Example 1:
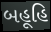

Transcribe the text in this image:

બહૂહિ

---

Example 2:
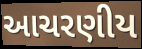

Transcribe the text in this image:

આચરણીય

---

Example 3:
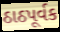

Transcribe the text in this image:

ઠાઠપૂર્વક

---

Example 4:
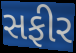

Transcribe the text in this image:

સફીર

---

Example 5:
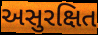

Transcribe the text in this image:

અસુરક્ષિત